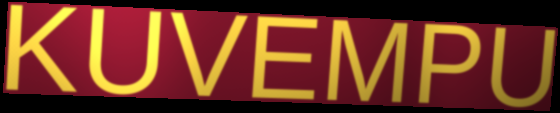
KUVEMPU